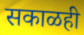
सकाळही